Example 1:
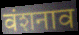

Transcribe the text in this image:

वंशनाव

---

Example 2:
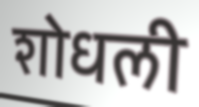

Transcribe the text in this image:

शोधली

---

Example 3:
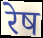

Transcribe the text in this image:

रेष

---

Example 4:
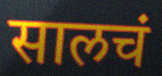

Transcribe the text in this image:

सालचं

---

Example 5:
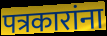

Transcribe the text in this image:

पत्रकारांना